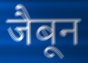
जैबून